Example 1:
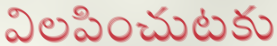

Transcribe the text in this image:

విలపించుటకు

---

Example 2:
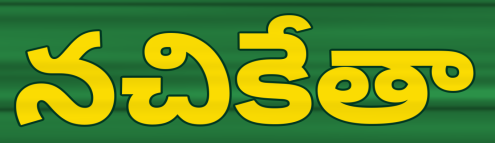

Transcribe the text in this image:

నచికేతా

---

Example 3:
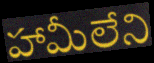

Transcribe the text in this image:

హామీలేని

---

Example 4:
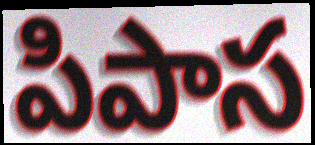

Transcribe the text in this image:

పిపాస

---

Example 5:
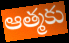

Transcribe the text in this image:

ఆత్మకు